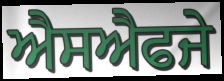
ਐਸਐਫਜੇ